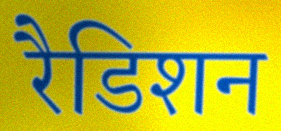
रैडिशन